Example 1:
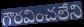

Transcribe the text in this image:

గౌరవించలేని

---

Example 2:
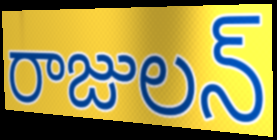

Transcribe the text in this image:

రాజులన్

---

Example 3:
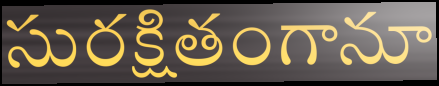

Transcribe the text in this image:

సురక్షితంగానూ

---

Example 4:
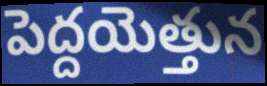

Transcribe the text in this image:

పెద్దయెత్తున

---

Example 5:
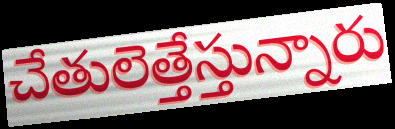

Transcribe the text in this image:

చేతులెత్తేస్తున్నారు